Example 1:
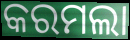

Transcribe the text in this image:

କରମଲା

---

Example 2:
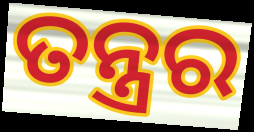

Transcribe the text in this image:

ତନ୍ତ୍ରର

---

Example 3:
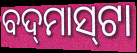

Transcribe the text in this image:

ବଦ୍‌ମାସ୍‌ଟା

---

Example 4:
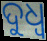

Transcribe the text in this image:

ଦୁଧ୍ଵ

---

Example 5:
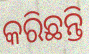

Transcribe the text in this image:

କରିଛନ୍ତି